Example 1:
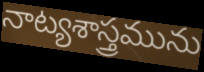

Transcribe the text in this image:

నాట్యశాస్త్రమును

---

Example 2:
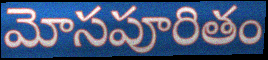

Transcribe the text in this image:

మోసపూరితం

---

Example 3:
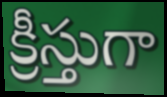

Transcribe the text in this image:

క్రీస్తుగా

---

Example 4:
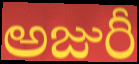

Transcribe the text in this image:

అజురీ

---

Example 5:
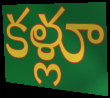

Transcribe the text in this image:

కళ్లూ